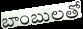
బాంబులతో